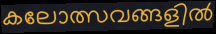
കലോത്സവങ്ങളിൽ